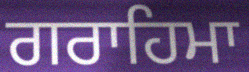
ਗਰਾਹਿਮਾ